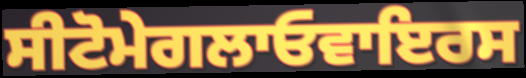
ਸੀਟੋਮੇਗਲਾਓਵਾਇਰਸ